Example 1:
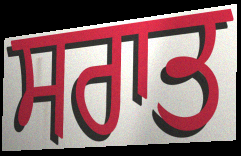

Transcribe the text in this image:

ਸਰਾਤ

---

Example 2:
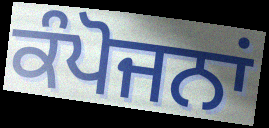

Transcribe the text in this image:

ਕੰਪੋਜਨਾਂ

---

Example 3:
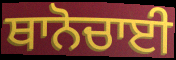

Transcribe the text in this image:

ਥਾਨੋਚਾਈ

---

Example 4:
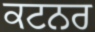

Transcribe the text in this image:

ਕਟਨਰ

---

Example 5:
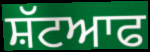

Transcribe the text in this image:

ਸ਼ੱਟਆਫ